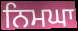
ਨਿਮਘਾ